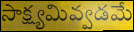
సాక్ష్యమివ్వడమే